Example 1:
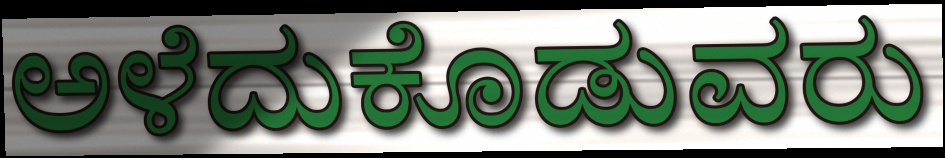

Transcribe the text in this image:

ಅಳೆದುಕೊಡುವರು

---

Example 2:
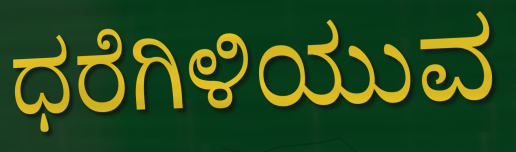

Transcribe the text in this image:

ಧರೆಗಿಳಿಯುವ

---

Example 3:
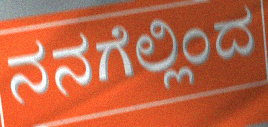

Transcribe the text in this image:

ನನಗೆಲ್ಲಿಂದ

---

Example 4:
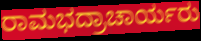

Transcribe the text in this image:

ರಾಮಭದ್ರಾಚಾರ್ಯರು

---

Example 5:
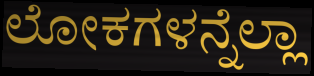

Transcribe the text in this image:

ಲೋಕಗಳನ್ನೆಲ್ಲಾ